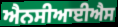
ਐਨਸੀਆਈਐਸ